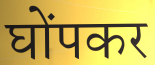
घोंपकर